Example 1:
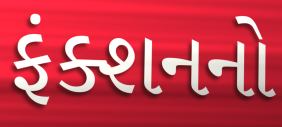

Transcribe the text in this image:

ફંક્શનનો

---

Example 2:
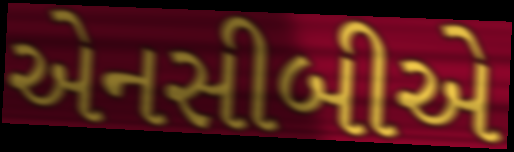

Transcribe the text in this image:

એનસીબીએ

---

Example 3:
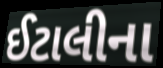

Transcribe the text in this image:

ઈટાલીના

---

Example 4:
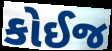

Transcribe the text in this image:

કોઈજ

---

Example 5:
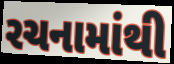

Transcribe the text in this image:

રચનામાંથી